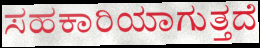
ಸಹಕಾರಿಯಾಗುತ್ತದೆ